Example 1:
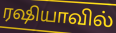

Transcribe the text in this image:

ரஷியாவில்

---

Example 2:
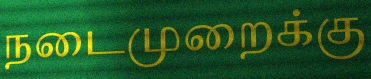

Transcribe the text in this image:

நடைமுறைக்கு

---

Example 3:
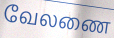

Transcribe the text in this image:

வேலணை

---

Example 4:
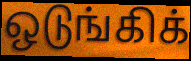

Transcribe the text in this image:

ஒடுங்கிக்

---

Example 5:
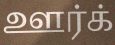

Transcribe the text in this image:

ஊர்க்